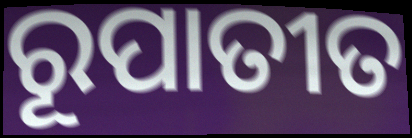
ରୂପାତୀତ